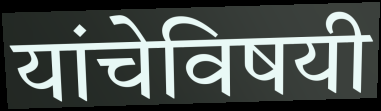
यांचेविषयी